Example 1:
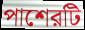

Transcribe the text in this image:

পাশেরটি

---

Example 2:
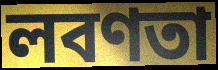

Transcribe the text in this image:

লবণতা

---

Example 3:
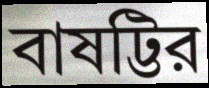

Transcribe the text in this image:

বাষট্টির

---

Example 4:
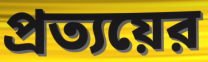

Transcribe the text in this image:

প্রত্যয়ের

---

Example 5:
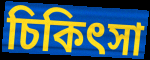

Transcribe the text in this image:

চিকিৎসা